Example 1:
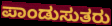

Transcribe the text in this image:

ಪಾಂಡುಸುತರು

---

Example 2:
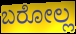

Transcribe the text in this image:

ಬರೋಲ್ಲ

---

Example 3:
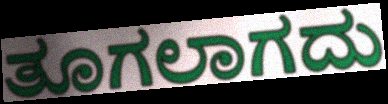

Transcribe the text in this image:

ತೂಗಲಾಗದು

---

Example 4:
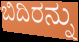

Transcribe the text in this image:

ಬಿದಿರನ್ನು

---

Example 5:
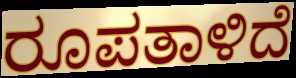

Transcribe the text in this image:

ರೂಪತಾಳಿದೆ